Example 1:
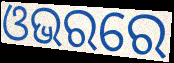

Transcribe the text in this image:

ଓଭରରେ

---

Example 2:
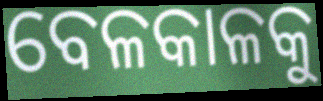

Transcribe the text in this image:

ବେଳକାଳକୁ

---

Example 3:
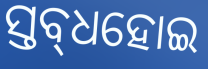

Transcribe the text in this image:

ସ୍ତବ୍‌ଧହୋଇ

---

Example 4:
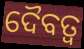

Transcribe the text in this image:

ଦୈବତ୍ଵ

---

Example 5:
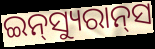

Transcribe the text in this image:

ଇନ୍‌ସ୍ୟୁରାନ୍‌ସ